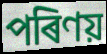
পৰিণয়